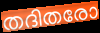
തദിതരോ